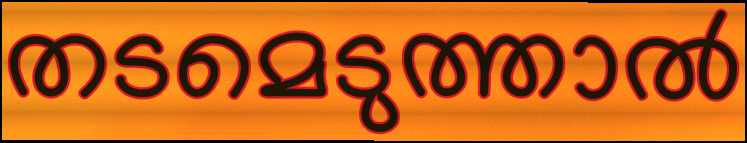
തടമെടുത്താൽ